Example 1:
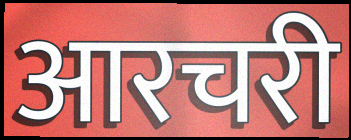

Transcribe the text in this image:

आरचरी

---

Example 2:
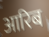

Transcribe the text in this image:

आरिब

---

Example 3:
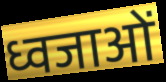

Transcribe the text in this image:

ध्वजाओं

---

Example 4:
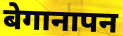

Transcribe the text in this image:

बेगानापन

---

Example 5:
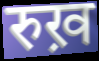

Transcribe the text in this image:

रुख़